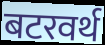
बटरवर्थ